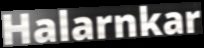
Halarnkar